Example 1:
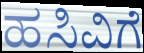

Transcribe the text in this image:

ಹಸಿವಿಗೆ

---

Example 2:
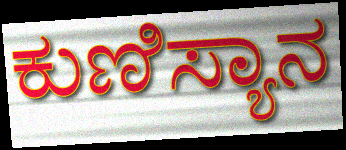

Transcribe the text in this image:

ಕುಣಿಸ್ಯಾನ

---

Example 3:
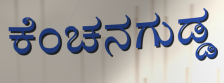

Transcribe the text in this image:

ಕೆಂಚನಗುಡ್ಡ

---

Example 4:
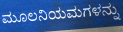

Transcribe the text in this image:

ಮೂಲನಿಯಮಗಳನ್ನು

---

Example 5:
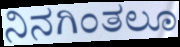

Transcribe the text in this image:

ನಿನಗಿಂತಲೂ